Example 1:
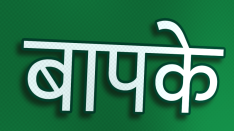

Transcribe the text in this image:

बापके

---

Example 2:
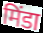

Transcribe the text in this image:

मिंडा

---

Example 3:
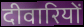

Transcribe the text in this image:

दीवारियों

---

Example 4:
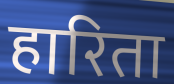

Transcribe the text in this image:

हारिता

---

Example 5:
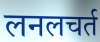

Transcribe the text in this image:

लनलचर्त